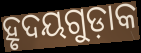
ହୃଦୟଗୁଡ଼ାକ